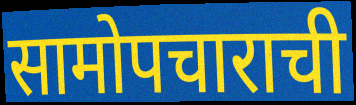
सामोपचाराची